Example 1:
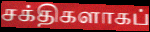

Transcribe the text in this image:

சக்திகளாகப்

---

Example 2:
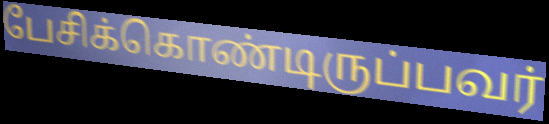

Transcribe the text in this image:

பேசிக்கொண்டிருப்பவர்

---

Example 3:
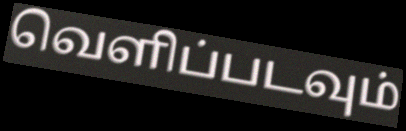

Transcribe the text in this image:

வெளிப்படவும்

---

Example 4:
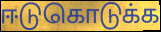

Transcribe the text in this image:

ஈடுகொடுக்க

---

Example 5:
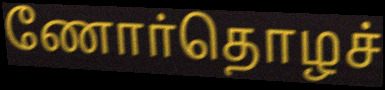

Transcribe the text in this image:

ணோர்தொழச்